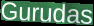
Gurudas